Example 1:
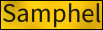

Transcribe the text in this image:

Samphel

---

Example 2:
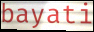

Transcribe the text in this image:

bayati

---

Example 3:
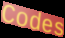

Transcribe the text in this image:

Codes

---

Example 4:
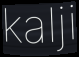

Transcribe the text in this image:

kalji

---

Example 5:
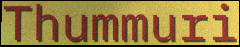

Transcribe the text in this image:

Thummuri